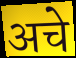
अचे